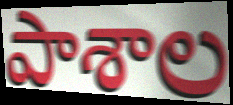
పాశాల